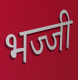
भज्जी